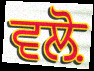
ਵਲ਼ੋ